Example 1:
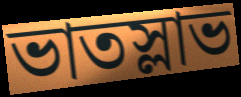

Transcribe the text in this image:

ভাতস্লাভ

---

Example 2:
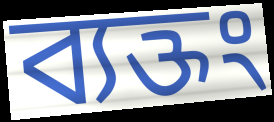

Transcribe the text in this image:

ব্যক্তং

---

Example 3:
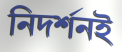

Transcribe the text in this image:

নিদর্শনই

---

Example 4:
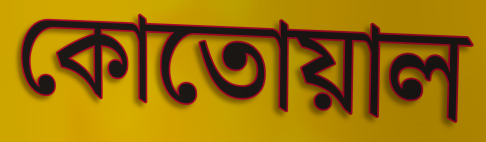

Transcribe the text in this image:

কোতোয়াল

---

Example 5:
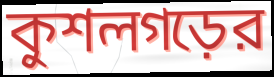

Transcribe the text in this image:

কুশলগড়ের